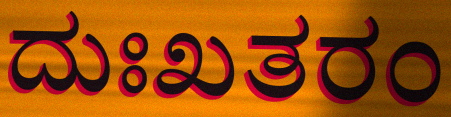
ದುಃಖತರಂ